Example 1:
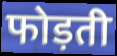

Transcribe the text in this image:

फोड़ती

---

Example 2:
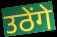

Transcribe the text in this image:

उठेंगे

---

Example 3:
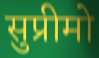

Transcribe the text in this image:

सुप्रीमो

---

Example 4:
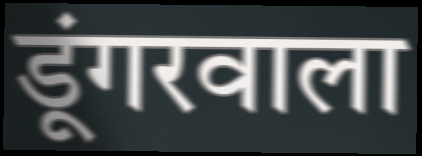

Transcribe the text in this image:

डूंगरवाला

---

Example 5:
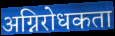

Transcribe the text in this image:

अग्निरोधकता